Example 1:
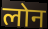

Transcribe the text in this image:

लोन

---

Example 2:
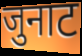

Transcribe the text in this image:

जुनाट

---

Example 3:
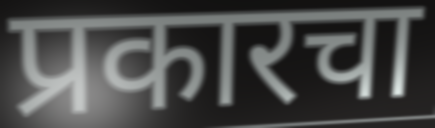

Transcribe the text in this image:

प्रकारचा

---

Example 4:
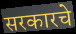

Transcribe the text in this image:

सरकारचे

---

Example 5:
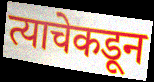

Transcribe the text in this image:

त्याचेकडून